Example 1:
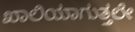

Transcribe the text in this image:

ಖಾಲಿಯಾಗುತ್ತಲೇ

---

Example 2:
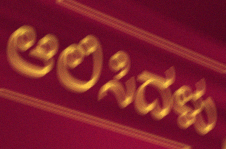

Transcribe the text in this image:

ಆಲಿಸಿದಳು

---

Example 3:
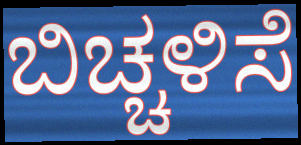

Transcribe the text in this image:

ಬಿಚ್ಚಳಿಸೆ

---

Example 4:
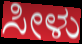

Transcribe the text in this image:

ಸೀಳು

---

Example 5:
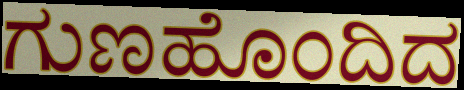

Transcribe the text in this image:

ಗುಣಹೊಂದಿದ